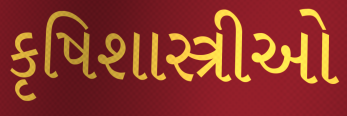
કૃષિશાસ્ત્રીઓ